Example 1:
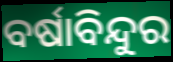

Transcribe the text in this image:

ବର୍ଷାବିନ୍ଦୁର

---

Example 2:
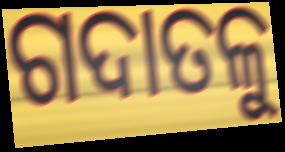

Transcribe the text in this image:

ଗଦାତଳୁ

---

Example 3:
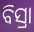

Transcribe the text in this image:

ବିସ୍ରା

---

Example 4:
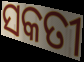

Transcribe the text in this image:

ସକତୀ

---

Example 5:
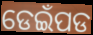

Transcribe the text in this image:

ଡେଇଁପଡ